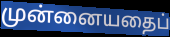
முன்னையதைப்